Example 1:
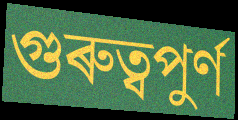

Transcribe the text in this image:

গুৰুত্বপুৰ্ণ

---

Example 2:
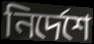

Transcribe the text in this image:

নিৰ্দেশে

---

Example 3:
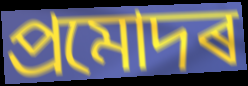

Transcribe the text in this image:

প্ৰমোদৰ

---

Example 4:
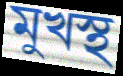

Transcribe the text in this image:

মুখস্থ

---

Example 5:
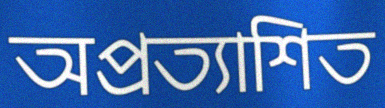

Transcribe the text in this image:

অপ্ৰত্যাশিত